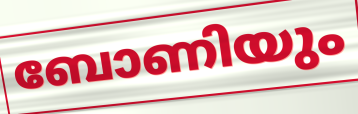
ബോണിയും